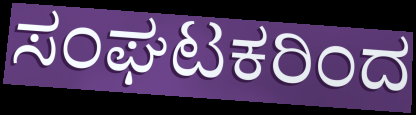
ಸಂಘಟಕರಿಂದ